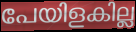
പേയിളകില്ല